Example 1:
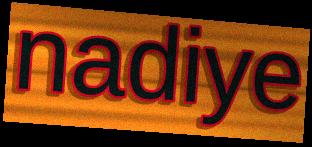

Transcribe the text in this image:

nadiye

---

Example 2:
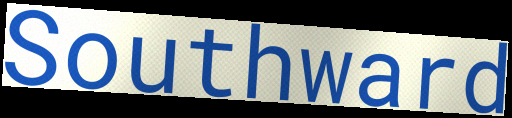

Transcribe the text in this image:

Southward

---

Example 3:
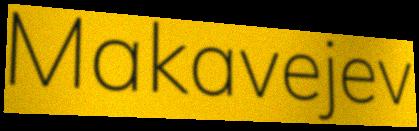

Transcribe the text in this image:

Makavejev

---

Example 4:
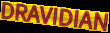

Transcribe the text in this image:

DRAVIDIAN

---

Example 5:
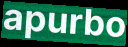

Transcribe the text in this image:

apurbo